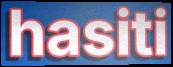
hasiti